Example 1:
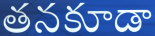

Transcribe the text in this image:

తనకూడా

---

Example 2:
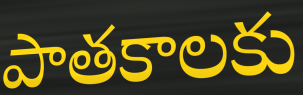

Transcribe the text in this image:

పాతకాలకు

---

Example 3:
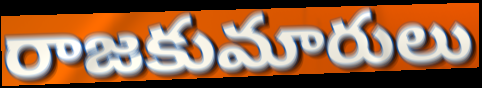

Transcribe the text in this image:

రాజకుమారులు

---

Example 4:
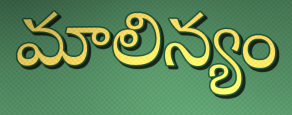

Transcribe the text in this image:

మాలిన్యం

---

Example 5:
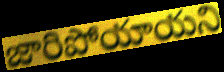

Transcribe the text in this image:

జారిపోయాయని